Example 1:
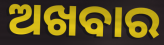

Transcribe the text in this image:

ଅଖବାର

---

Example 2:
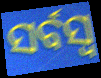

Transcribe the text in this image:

ସର୍ବସ୍ୱ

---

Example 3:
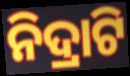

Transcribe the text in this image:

ନିଦ୍ରାଟି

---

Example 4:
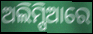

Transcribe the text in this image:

ଅଲିମ୍ପିଆରେ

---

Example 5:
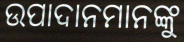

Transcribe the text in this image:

ଉପାଦାନମାନଙ୍କୁ